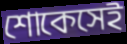
শোকেসেই